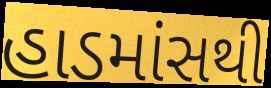
હાડમાંસથી